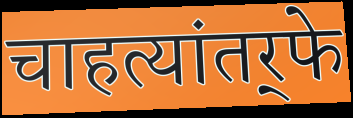
चाहत्यांतर्फे